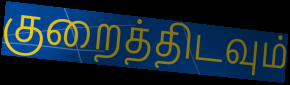
குறைத்திடவும்